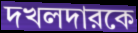
দখলদারকে